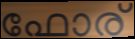
ഫോര്